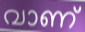
വാണ്